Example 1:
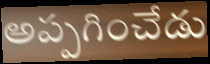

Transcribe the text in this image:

అప్పగించేడు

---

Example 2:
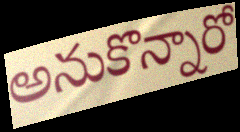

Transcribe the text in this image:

అనుకొన్నారో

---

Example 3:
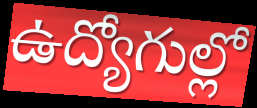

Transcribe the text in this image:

ఉద్యోగుల్లో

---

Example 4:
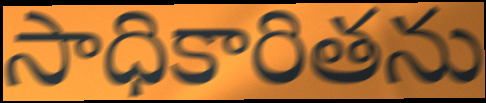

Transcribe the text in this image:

సాధికారితను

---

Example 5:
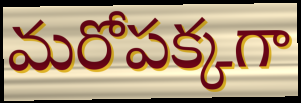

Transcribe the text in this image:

మరోపక్కగా